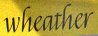
wheather